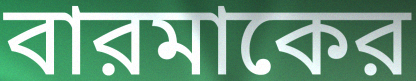
বারমাকের